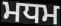
ਮਧਮ